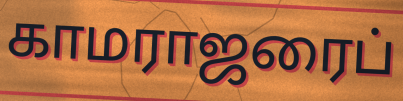
காமராஜரைப்